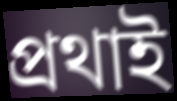
প্রথাই